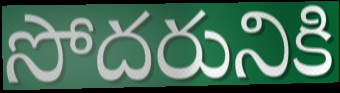
సోదరునికి